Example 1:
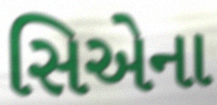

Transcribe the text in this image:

સિએના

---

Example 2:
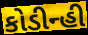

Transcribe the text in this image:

કોડીન્હી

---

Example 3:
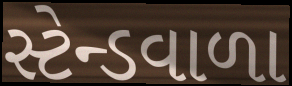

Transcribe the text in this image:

સ્ટેન્ડવાળા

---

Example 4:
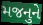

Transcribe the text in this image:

મજનુને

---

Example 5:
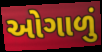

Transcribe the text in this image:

ઓગાળું